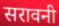
सरावनी